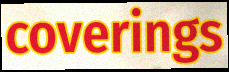
coverings